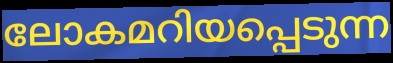
ലോകമറിയപ്പെടുന്ന